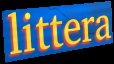
littera